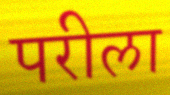
परीला